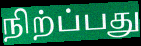
நிற்ப்பது